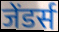
जेंडर्स